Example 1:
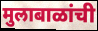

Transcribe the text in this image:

मुलाबाळांची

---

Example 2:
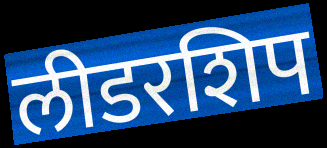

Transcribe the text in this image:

लीडरशिप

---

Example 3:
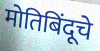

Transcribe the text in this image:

मोतिबिंदूचे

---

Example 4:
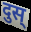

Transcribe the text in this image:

दुस्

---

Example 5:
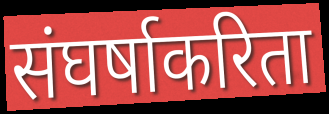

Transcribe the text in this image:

संघर्षाकरिता